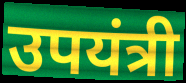
उपयंत्री